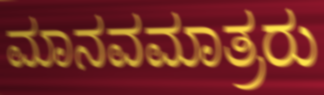
ಮಾನವಮಾತ್ರರು